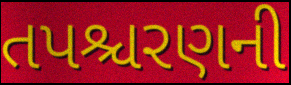
તપશ્ચરણની